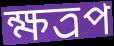
ক্ষত্রপ